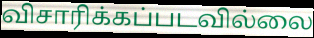
விசாரிக்கப்படவில்லை